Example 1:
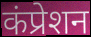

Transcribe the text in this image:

कंप्रेशन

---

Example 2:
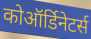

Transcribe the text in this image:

कोऑर्डिनेटर्स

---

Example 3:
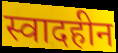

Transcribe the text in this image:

स्वादहीन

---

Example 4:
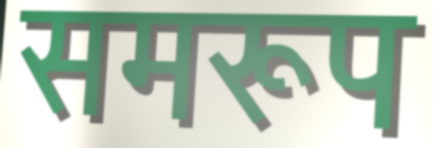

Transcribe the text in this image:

समरूप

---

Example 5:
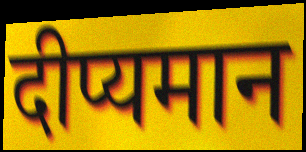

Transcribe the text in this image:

दीप्यमान